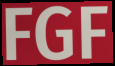
FGF